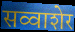
सव्वाशेर